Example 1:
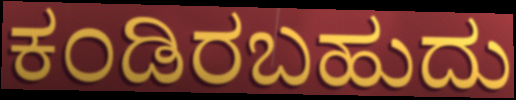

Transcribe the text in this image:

ಕಂಡಿರಬಹುದು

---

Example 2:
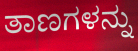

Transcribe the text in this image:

ತಾಣಗಳನ್ನು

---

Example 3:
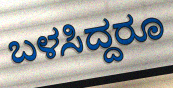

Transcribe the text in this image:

ಬಳಸಿದ್ದರೂ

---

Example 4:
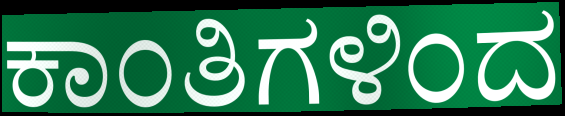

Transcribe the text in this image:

ಕಾಂತಿಗಳಿಂದ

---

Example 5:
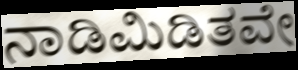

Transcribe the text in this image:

ನಾಡಿಮಿಡಿತವೇ